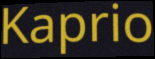
Kaprio